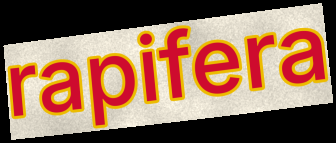
rapifera